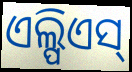
ଏଲ୍ପିଏସ୍